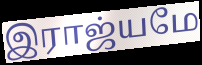
இராஜ்யமே